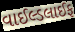
વાઈલ્ડલાઈફ